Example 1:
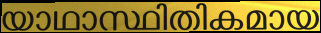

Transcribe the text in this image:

യാഥാസ്ഥിതികമായ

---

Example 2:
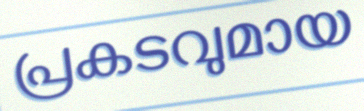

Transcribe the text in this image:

പ്രകടവുമായ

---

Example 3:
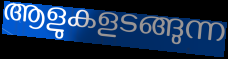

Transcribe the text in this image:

ആളുകളടങ്ങുന്ന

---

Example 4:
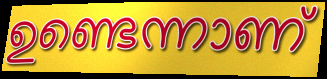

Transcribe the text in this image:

ഉണ്ടെന്നാണ്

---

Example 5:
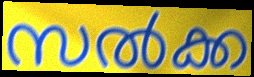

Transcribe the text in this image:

സൽക്ക